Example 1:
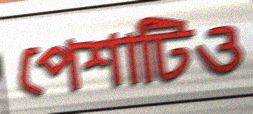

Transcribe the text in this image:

পেশাটিও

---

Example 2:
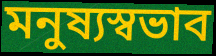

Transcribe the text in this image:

মনুষ্যস্বভাব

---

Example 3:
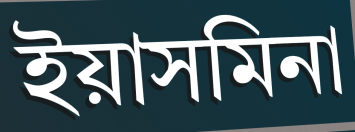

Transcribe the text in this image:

ইয়াসমিনা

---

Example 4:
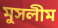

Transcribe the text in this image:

মুসলীম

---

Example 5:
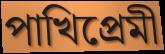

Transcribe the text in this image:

পাখিপ্রেমী